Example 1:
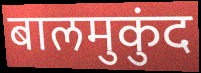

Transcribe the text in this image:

बालमुकुंद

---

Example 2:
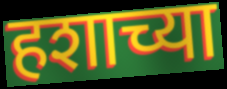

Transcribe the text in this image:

हशाच्या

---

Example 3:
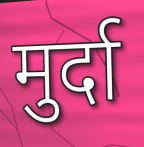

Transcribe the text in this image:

मुर्दा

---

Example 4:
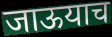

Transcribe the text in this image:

जाऊयाच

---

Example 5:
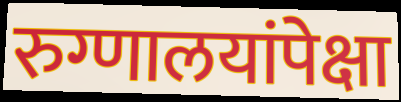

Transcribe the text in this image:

रुग्णालयांपेक्षा